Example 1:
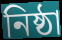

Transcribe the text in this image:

নিষ্ঠা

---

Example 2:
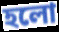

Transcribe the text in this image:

হলো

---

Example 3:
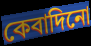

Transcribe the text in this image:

কেবাদিনো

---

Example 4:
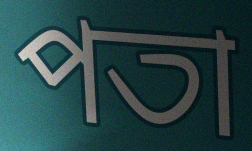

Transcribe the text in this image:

পতা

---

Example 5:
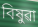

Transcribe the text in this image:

বিষুৱা